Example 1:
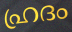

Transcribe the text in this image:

ഹ്രദം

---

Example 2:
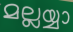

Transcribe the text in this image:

മല്ലയ്യാ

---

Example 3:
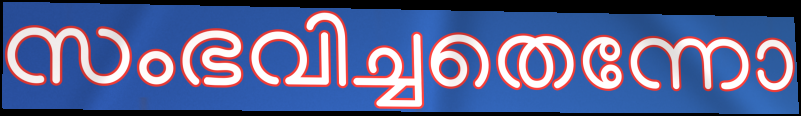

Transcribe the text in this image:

സംഭവിച്ചതെന്നോ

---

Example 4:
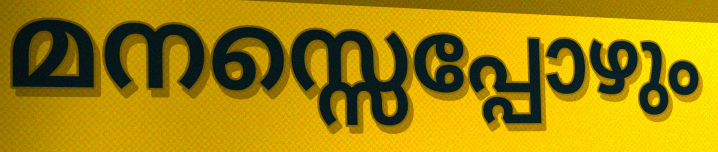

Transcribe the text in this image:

മനസ്സെപ്പോഴും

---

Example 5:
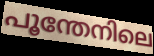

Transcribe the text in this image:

പൂന്തേനിലെ